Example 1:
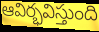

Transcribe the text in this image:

ఆవిర్భవిస్తుంది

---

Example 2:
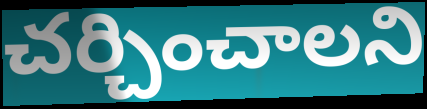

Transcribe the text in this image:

చర్చించాలని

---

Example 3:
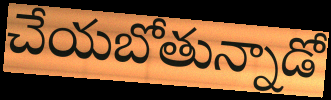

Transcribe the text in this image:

చేయబోతున్నాడో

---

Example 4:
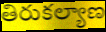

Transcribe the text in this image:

తిరుకల్యాణ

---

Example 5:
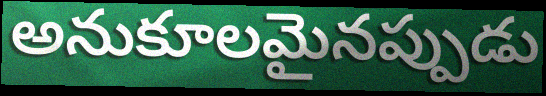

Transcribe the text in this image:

అనుకూలమైనప్పుడు